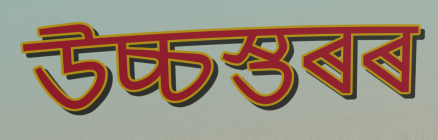
উচ্চস্তৰৰ